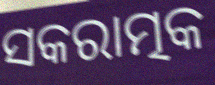
ସକରାତ୍ମକ